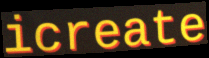
icreate